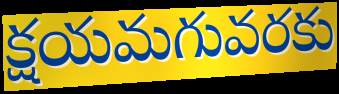
క్షయమగువరకు